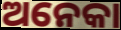
ଅନେକା